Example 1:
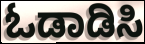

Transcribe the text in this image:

ಓಡಾಡಿಸಿ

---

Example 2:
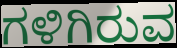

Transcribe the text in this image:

ಗಳಿಗಿರುವ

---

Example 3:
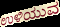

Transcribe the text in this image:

ಉಳಿಯುವ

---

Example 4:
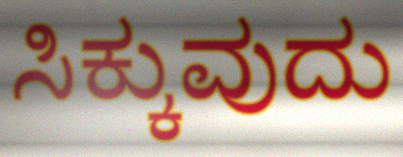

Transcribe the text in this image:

ಸಿಕ್ಕುವುದು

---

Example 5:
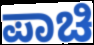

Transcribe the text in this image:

ಪಾಚಿ